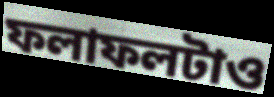
ফলাফলটাও